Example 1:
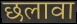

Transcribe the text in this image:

छलावा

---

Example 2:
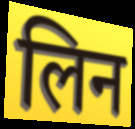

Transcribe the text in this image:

लिन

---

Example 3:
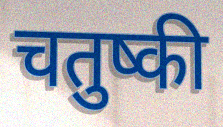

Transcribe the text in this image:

चतुष्की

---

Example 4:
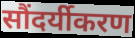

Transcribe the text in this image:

सौंदर्यीकरण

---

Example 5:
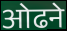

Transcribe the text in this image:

ओढने